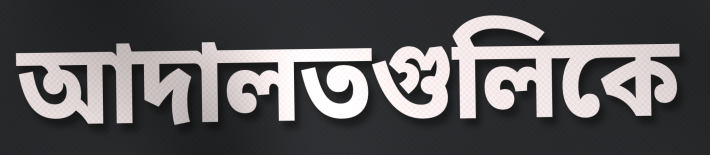
আদালতগুলিকে